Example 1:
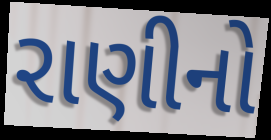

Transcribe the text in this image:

રાણીનો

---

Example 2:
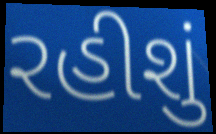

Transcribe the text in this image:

રહીશું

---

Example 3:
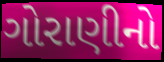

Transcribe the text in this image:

ગોરાણીનો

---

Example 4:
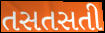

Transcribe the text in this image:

તસતસતી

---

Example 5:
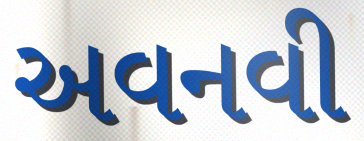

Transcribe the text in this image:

અવનવી